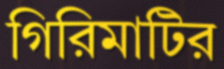
গিরিমাটির